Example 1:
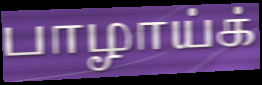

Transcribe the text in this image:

பாழாய்க்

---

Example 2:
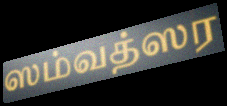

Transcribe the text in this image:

ஸம்வத்ஸர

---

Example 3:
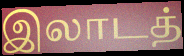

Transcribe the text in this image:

இலாடத்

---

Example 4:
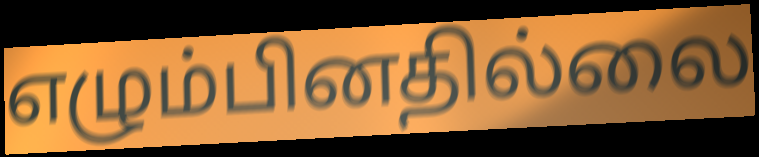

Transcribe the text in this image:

எழும்பினதில்லை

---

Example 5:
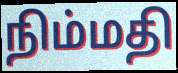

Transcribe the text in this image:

நிம்மதி